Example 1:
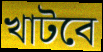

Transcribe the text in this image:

খাটবে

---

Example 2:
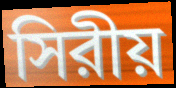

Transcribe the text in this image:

সিরীয়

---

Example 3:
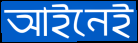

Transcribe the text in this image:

আইনেই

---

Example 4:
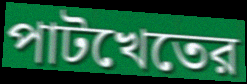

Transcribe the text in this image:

পাটখেতের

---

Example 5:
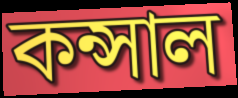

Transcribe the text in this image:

কন্সাল